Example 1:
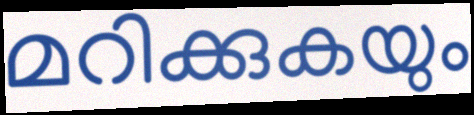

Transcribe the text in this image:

മറിക്കുകയും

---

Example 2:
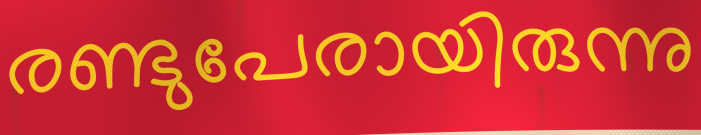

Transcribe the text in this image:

രണ്ടുപേരായിരുന്നു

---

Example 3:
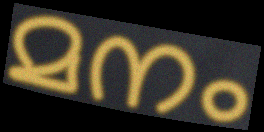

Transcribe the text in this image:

മനം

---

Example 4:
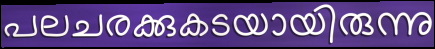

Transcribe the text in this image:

പലചരക്കുകടയായിരുന്നു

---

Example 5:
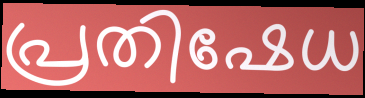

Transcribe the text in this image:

പ്രതിഷേധ